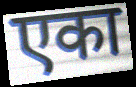
एका